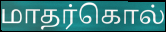
மாதர்கொல்